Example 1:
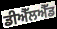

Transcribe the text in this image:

ਡੀਐੱਲਐੱਡ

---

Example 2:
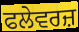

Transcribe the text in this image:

ਫਲੇਵਰਜ਼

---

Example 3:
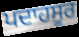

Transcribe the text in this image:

ਪਦਾਹਸੂਰ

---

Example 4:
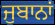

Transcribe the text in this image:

ਜੁਬਾਨਾਂ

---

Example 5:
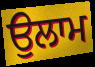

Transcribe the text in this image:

ਉਲਾਮ